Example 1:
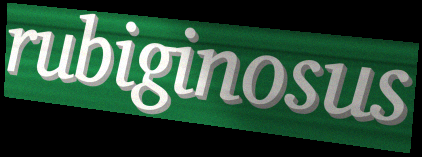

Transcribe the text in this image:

rubiginosus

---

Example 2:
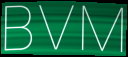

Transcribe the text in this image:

BVM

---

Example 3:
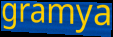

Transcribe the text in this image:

gramya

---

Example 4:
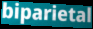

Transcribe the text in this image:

biparietal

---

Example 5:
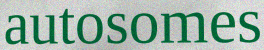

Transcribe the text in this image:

autosomes